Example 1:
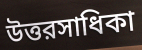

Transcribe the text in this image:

উত্তরসাধিকা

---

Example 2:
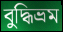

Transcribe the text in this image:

বুদ্ধিভ্রম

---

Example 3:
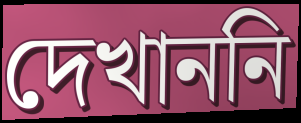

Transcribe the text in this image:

দেখাননি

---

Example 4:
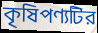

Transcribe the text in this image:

কৃষিপণ্যটির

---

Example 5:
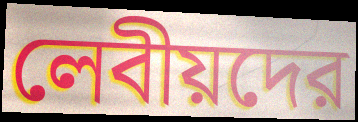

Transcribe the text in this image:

লেবীয়দের